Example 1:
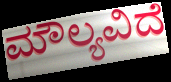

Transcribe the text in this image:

ಮೌಲ್ಯವಿದೆ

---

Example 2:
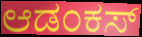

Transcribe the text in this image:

ಆಡಂಕಸ್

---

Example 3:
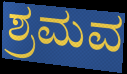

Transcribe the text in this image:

ಶ್ರಮವ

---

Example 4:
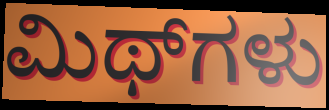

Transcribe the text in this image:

ಮಿಥ್‌ಗಳು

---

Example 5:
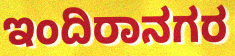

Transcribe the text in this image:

ಇಂದಿರಾನಗರ